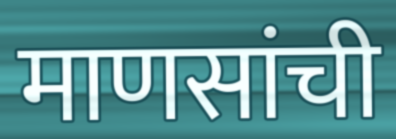
माणसांची